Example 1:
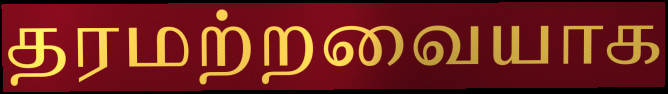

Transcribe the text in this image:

தரமற்றவையாக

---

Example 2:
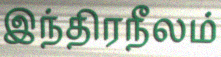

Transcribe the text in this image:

இந்திரநீலம்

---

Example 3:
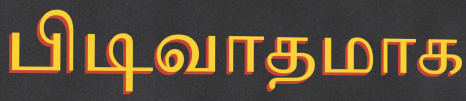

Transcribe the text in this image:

பிடிவாதமாக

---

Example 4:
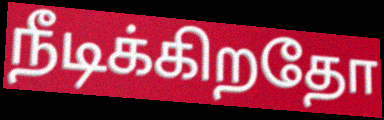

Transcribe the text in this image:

நீடிக்கிறதோ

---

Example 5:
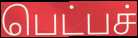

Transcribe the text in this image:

பெட்பச்